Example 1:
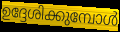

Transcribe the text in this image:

ഉദ്ദേശിക്കുമ്പോൾ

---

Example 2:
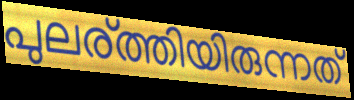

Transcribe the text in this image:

പുലര്ത്തിയിരുന്നത്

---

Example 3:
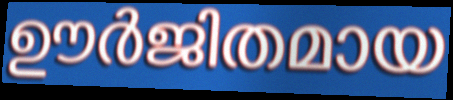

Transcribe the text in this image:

ഊർജിതമായ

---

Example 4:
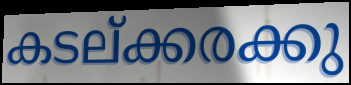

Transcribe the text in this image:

കടല്ക്കരക്കു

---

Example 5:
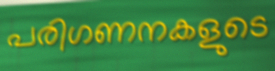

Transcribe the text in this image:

പരിഗണനകളുടെ